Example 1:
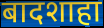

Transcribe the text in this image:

बादशाहा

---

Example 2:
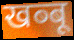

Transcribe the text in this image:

खब्‍बू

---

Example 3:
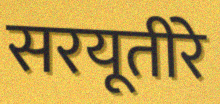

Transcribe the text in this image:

सरयूतीरे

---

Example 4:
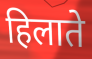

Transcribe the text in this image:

हिलाते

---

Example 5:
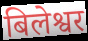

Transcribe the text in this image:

बिलेश्वर